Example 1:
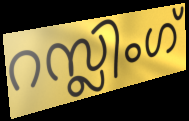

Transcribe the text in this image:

റസ്ലിംഗ്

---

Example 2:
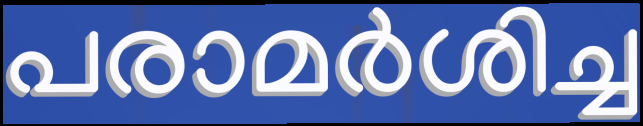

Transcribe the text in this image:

പരാമർശിച്ച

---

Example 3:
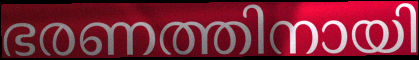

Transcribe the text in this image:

ഭരണത്തിനായി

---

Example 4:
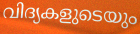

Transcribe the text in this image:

വിദ്യകളുടെയും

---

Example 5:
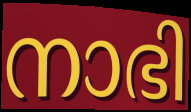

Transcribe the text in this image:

നാഭി